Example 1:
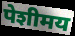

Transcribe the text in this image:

पेशीमय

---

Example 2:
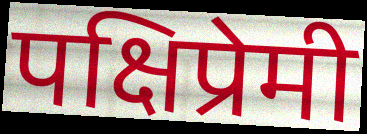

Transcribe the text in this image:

पक्षिप्रेमी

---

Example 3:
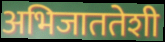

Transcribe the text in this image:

अभिजाततेशी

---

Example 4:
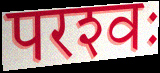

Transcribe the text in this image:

परश्वः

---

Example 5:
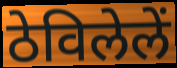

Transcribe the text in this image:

ठेविलेलें